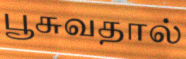
பூசுவதால்